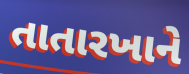
તાતારખાને